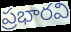
ప్రభారవి